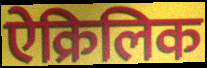
ऐक्रिलिक